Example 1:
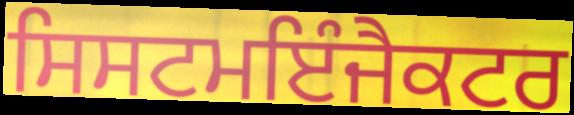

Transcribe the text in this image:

ਸਿਸਟਮਇੰਜੈਕਟਰ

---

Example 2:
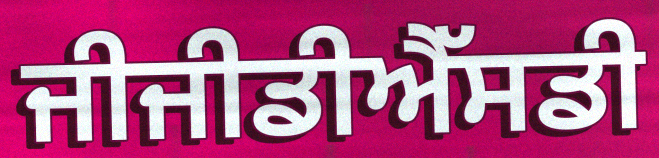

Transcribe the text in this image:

ਜੀਜੀਡੀਐੱਸਡੀ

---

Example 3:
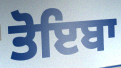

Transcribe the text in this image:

ਤੋਇਬਾ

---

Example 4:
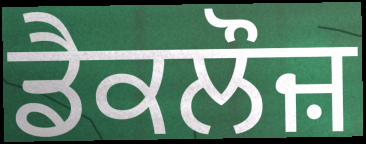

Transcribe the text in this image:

ਡੈਕਲੌਜ਼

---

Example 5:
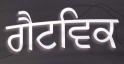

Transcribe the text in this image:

ਗੈਟਵਿਕ